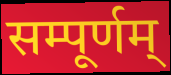
सम्पूर्णम्